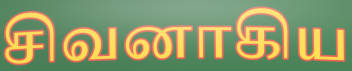
சிவனாகிய